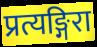
प्रत्यङ्गिरा